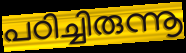
പഠിച്ചിരുന്നൂ